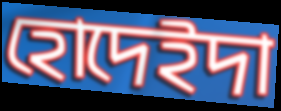
হোদেইদা